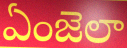
ఏంజెలా